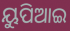
ୟୁପିଆଇ